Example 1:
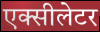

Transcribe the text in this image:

एक्सीलेटर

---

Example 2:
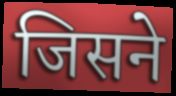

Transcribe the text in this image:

जिसने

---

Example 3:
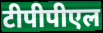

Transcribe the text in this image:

टीपीपीएल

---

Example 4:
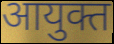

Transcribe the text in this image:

आयुक्त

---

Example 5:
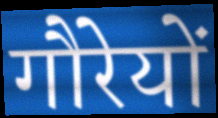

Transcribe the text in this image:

गौरेयों